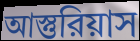
আস্তুরিয়াস